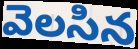
వెలసిన